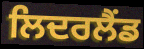
ਲਿਦਰਲੈਂਡ